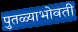
पुतळ्याभोवती